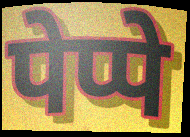
पेप्पे